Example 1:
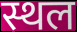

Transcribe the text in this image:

स्थल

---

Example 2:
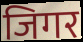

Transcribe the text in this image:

जिगर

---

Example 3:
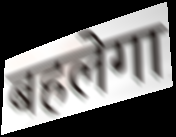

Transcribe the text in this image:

बहलेगा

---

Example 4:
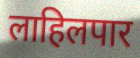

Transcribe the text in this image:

लाहिलपार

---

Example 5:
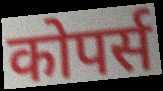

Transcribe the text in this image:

कोपर्स